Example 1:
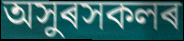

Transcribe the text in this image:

অসুৰসকলৰ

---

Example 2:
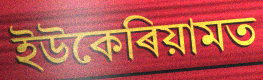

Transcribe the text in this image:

ইউকেৰিয়ামত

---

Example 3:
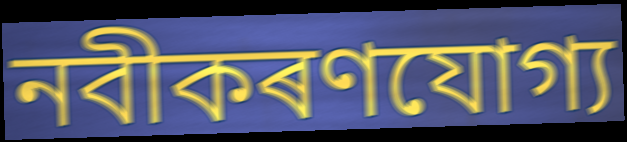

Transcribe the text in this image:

নবীকৰণযোগ্য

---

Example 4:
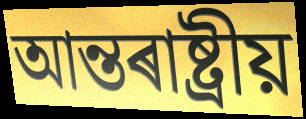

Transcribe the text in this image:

আন্তৰাষ্ট্ৰীয়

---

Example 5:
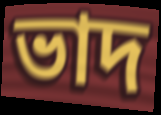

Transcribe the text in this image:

ভাদ